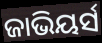
ଜାଭିୟର୍ସ